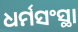
ଧର୍ମସଂସ୍ଥା